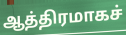
ஆத்திரமாகச்